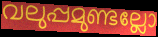
വലുപ്പമുണ്ടല്ലോ